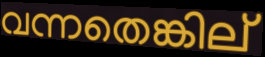
വന്നതെങ്കില്